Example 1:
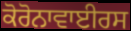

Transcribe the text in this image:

ਕੋਰੋਨਾਵਾਈਰਸ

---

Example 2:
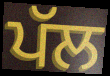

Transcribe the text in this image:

ਪੱਲ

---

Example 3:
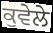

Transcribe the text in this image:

ਕੁਵੇਲੇ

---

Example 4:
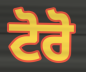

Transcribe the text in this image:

ਟੋਰੋ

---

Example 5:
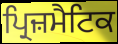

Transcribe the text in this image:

ਪ੍ਰਿਜ਼ਮੈਟਿਕ